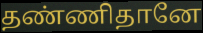
தண்ணிதானே